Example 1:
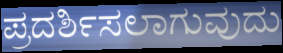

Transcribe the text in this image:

ಪ್ರದರ್ಶಿಸಲಾಗುವುದು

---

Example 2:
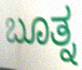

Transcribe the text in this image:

ಬೂತ್ನ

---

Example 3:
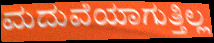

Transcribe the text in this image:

ಮದುವೆಯಾಗುತ್ತಿಲ್ಲ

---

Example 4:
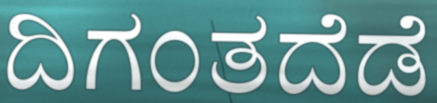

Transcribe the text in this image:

ದಿಗಂತದೆಡೆ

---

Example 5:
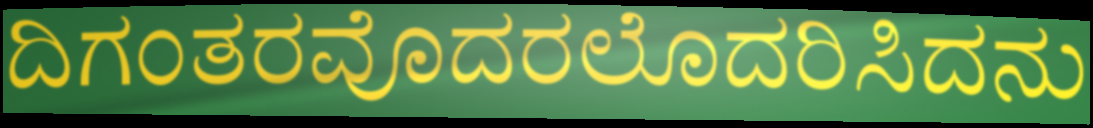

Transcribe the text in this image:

ದಿಗಂತರವೊದರಲೊದರಿಸಿದನು